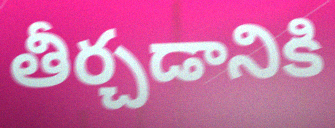
తీర్చడానికి